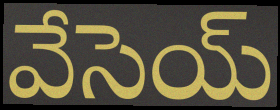
వేసెయ్